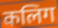
कलिग